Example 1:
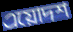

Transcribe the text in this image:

এয়োদশ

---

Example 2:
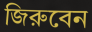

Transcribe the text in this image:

জিরুবেন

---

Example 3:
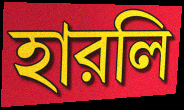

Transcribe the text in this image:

হারলি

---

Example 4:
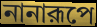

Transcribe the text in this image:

নানারূপে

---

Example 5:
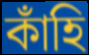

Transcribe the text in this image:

কাঁহি